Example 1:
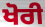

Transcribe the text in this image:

ਖੋਰੀ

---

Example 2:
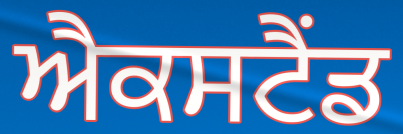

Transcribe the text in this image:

ਐਕਸਟੈਂਡ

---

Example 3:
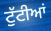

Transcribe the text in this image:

ਟੁੱਟੀਆਂ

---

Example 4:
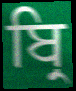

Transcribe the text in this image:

ਬ੍ਰਿ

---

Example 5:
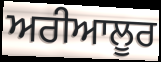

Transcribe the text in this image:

ਅਰੀਆਲੂਰ